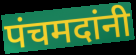
पंचमदांनी